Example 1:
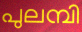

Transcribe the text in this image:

പുലമ്പി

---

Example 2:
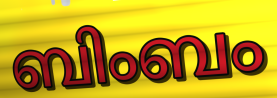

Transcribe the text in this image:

ബിംബം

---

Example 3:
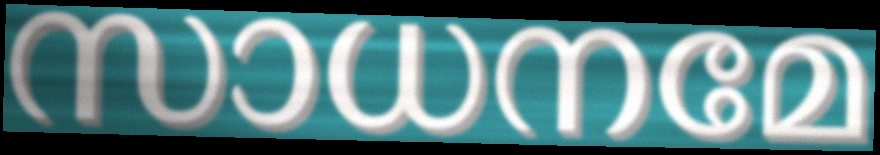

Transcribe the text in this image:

സാധനമേ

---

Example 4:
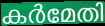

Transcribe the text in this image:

കർമേതി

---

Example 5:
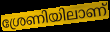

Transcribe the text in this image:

ശ്രേണിയിലാണ്